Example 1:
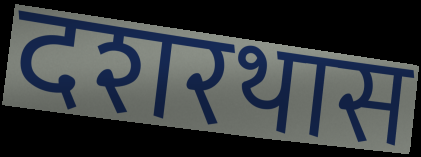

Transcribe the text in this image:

दशरथास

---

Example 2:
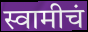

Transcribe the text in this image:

स्वामीचं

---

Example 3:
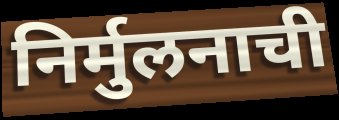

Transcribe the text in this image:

निर्मुलनाची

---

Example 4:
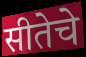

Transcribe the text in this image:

सीतेचे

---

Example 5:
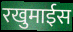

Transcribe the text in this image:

रखुमाईस